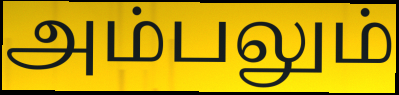
அம்பலும்